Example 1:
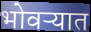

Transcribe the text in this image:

भोवऱ्यात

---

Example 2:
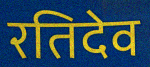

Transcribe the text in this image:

रतिदेव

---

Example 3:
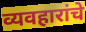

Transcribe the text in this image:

व्यवहारांचे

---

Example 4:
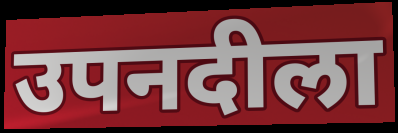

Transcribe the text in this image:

उपनदीला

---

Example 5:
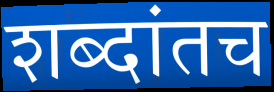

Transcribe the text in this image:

शब्दांतच